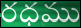
రధము